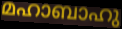
മഹാബാഹു